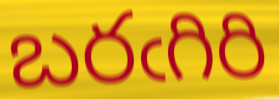
బరఁగిరి